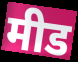
मीड